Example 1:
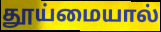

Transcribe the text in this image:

தூய்மையால்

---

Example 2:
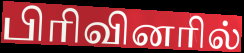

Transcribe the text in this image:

பிரிவினரில்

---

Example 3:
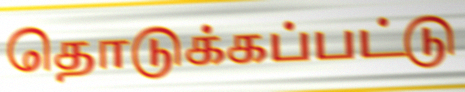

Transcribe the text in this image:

தொடுக்கப்பட்டு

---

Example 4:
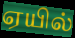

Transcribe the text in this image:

ஏயில்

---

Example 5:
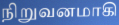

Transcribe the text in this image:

நிறுவனமாகி